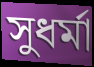
সুধর্মা